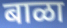
बाळा